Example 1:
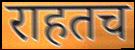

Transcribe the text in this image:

राहतच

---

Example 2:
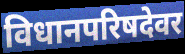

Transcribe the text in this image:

विधानपरिषदेवर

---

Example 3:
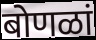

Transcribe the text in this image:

बोणळां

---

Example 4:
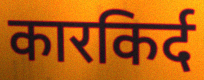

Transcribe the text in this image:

कारकिर्द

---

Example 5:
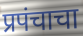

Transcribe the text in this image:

प्रपंचाचा